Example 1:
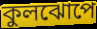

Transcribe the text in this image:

কুলঝোপে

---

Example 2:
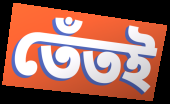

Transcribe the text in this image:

তেঁতই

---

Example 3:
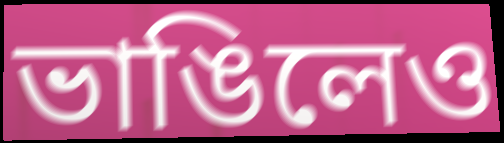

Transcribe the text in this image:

ভাঙিলেও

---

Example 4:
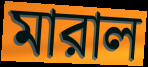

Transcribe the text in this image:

মারাল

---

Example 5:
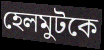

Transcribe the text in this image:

হেলমুটকে